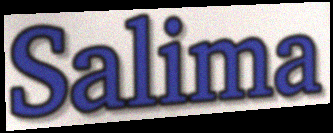
Salima